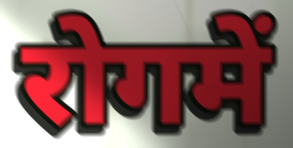
रोगमें